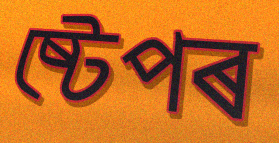
ষ্টেপৰ